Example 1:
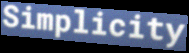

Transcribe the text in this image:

Simplicity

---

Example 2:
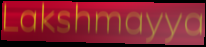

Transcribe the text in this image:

Lakshmayya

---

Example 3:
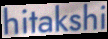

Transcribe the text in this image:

hitakshi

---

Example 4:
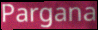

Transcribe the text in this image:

Pargana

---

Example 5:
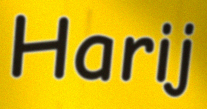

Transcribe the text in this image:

Harij